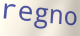
regno